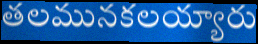
తలమునకలయ్యారు